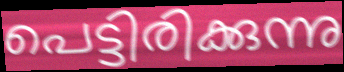
പെട്ടിരിക്കുന്നു